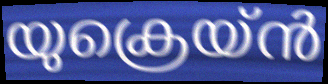
യുക്രെയ്ൻ